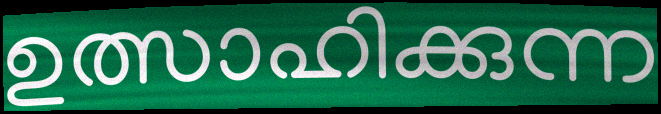
ഉത്സാഹിക്കുന്ന